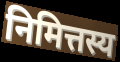
निमित्तस्य